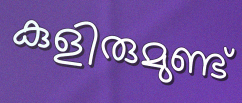
കുളിരുമുണ്ട്